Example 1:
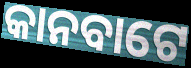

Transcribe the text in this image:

କାନବାଟେ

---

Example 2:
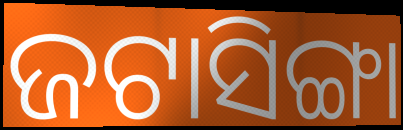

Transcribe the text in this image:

ଜଟାସିଙ୍ଗା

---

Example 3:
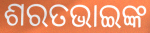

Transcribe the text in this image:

ଶରତଭାଇଙ୍କ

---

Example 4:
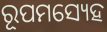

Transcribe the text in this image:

ରୂପମସ୍ୟେହ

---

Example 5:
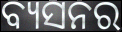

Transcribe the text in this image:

ବ୍ୟସନର